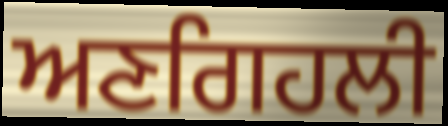
ਅਣਗਿਹਲੀ